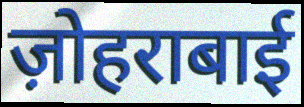
ज़ोहराबाई